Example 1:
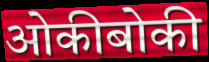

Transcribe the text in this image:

ओकीबोकी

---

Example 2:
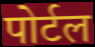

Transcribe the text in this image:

पोर्टल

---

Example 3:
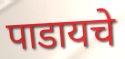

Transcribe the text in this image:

पाडायचे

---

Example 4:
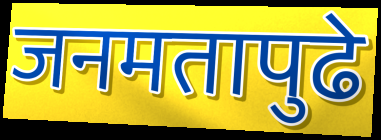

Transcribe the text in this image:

जनमतापुढे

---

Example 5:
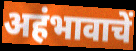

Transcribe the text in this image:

अहंभावाचें